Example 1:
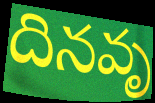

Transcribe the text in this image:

దినవృ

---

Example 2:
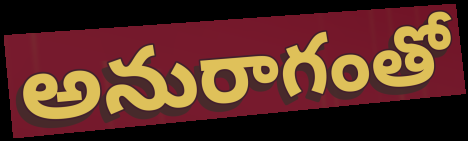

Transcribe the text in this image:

అనురాగంతో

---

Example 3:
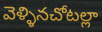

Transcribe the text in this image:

వెళ్ళినచోటల్లా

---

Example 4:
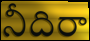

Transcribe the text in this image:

నీదిరా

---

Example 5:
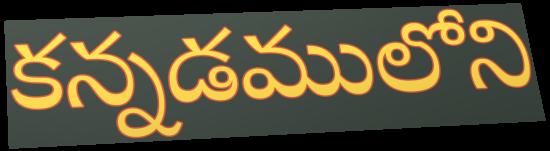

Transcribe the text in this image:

కన్నడములోని